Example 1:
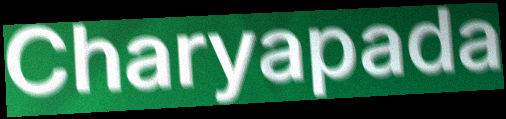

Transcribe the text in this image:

Charyapada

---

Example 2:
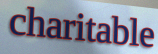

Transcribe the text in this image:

charitable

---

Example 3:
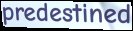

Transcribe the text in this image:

predestined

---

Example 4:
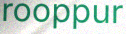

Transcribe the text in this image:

rooppur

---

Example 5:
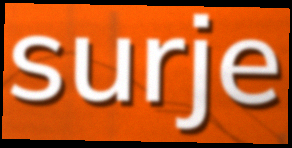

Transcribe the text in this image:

surje